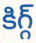
కిగ్గ్